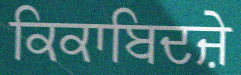
ਕਿਕਾਬਿਦਜ਼ੇ